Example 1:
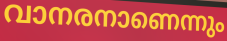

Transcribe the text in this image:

വാനരനാണെന്നും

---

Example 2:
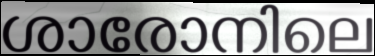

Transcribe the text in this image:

ശാരോനിലെ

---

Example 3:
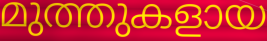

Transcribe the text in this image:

മുത്തുകളായ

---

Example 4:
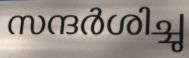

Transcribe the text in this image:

സന്ദർശിച്ചു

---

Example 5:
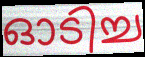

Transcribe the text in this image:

ഓടിച്ച